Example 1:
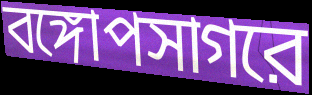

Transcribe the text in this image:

বঙ্গোপসাগরে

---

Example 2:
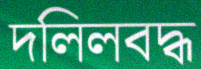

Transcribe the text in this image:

দলিলবদ্ধ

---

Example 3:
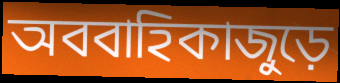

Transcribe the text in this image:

অববাহিকাজুড়ে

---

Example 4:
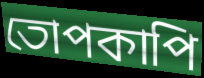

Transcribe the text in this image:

তোপকাপি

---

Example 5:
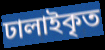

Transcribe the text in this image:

ঢালাইকৃত